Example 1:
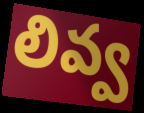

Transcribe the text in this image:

లివ్వ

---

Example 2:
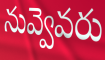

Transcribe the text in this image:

నువ్వెవరు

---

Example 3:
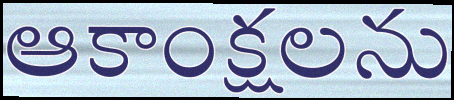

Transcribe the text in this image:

ఆకాంక్షలను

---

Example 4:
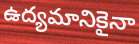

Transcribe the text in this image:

ఉద్యమానికైనా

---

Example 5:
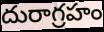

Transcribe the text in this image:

దురాగ్రహం